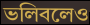
ভলিবলেও